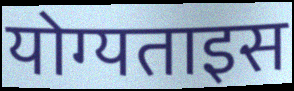
योग्यताइस